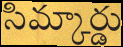
సిమ్కార్డు